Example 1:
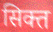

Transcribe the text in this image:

सिक्त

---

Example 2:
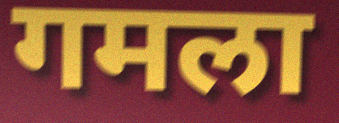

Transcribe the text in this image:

गमला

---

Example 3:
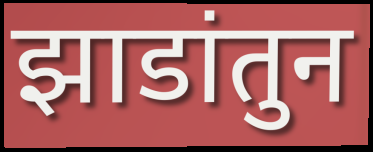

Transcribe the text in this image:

झाडांतुन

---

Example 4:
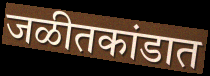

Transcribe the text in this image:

जळीतकांडात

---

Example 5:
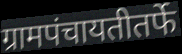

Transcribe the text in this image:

ग्रामपंचायतीतर्फे